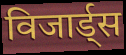
विजार्ड्स